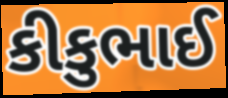
કીકુભાઈ